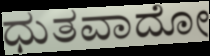
ಧುತವಾದೋ